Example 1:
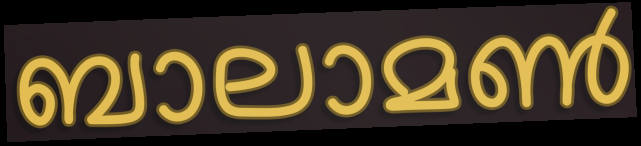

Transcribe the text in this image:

ബാലാമൺ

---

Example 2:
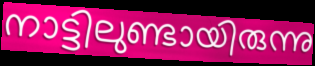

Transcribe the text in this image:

നാട്ടിലുണ്ടായിരുന്നു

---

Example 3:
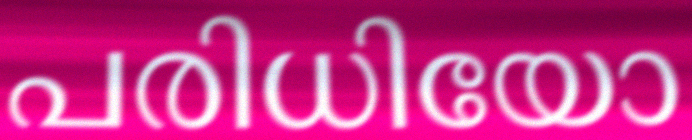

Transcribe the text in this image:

പരിധിയോ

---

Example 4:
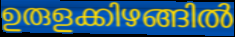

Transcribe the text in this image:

ഉരുളക്കിഴങ്ങിൽ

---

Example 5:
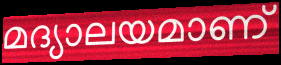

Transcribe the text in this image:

മദ്യാലയമാണ്